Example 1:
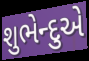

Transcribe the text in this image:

શુભેન્દુએ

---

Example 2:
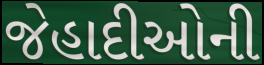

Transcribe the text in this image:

જેહાદીઓની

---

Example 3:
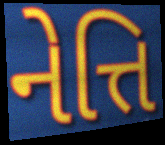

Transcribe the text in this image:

નેત્તિ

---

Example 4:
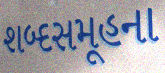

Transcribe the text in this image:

શબ્દસમૂહના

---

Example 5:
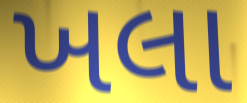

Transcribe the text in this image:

ખલા